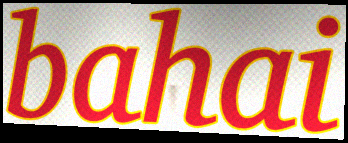
bahai